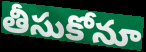
తీసుకోనూ